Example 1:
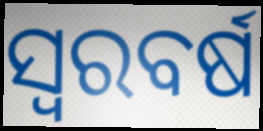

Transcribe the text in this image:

ସ୍ଵରବର୍ଷ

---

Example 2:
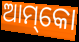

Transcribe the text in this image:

ଆମ୍‌କୋ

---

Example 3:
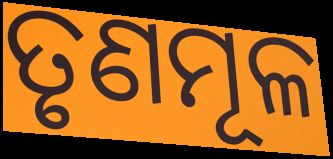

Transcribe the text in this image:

ତୃଣମୂଳ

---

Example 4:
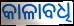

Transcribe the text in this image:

କାଳାବଧି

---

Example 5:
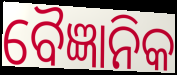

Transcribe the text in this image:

ବୈଜ୍ଞାନିକ